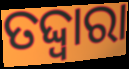
ତଦ୍ଦ୍ଵାରା